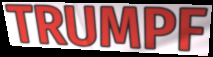
TRUMPF